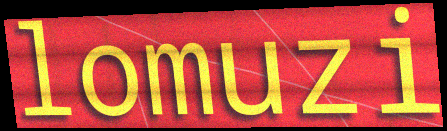
lomuzi